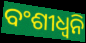
ବଂଶୀଧ୍ବନି